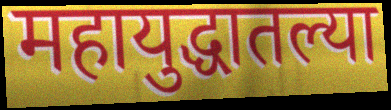
महायुद्धातल्या